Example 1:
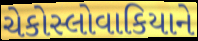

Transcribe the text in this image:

ચેકોસ્લોવાકિયાને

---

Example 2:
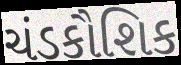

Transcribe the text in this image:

ચંડકૌશિક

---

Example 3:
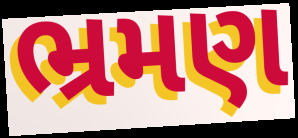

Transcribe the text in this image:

ભ્રમણ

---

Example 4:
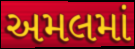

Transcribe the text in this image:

અમલમાં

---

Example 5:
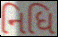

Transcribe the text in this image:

નિધિ